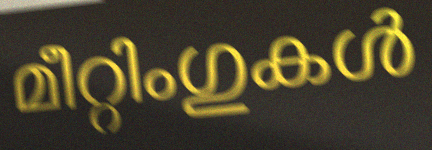
മീറ്റിംഗുകൾ